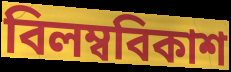
বিলম্ববিকাশ